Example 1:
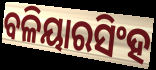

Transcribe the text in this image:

ବଳିୟାରସିଂହ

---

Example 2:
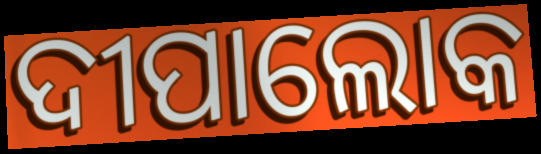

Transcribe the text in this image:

ଦୀପାଲୋକ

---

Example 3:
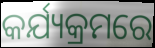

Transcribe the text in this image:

କର୍ଯ୍ୟକ୍ରମରେ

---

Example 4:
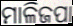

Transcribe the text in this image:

ମାଳିଜପା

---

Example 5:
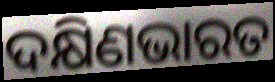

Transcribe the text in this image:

ଦକ୍ଷିଣଭାରତ